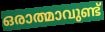
ഒരാത്മാവുണ്ട്